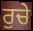
ਰੁਚੇ